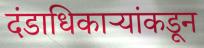
दंडाधिकाऱ्यांकडून